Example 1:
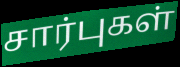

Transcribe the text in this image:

சார்புகள்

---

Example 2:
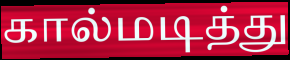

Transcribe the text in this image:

கால்மடித்து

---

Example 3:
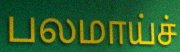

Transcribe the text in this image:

பலமாய்ச்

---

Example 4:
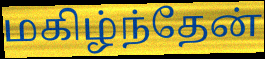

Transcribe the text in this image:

மகிழ்ந்தேன்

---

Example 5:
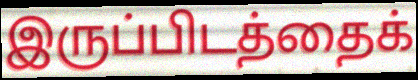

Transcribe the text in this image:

இருப்பிடத்தைக்